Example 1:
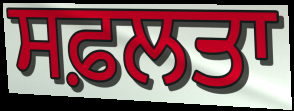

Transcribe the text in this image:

ਸਫ਼ਲਤਾ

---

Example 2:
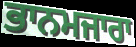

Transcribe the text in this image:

ਭਾਨਮਜਾਰਾ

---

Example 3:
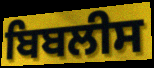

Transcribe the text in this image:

ਬਿਬਲੀਸ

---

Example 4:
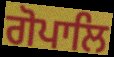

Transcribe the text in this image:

ਗੋਪਾਲਿ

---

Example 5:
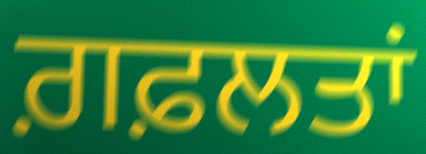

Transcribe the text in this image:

ਗ਼ਫ਼ਲਤਾਂ